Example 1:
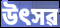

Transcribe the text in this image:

উৎসৱ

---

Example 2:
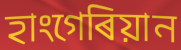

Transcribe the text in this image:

হাংগেৰিয়ান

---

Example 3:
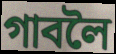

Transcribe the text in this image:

গাবলৈ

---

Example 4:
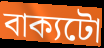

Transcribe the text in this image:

বাক্যটো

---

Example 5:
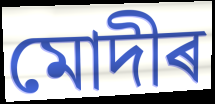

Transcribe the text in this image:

মোদীৰ